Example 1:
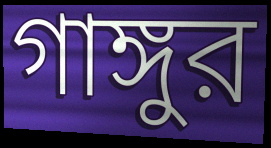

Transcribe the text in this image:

গাঙ্গুর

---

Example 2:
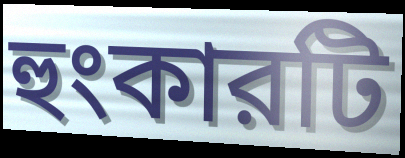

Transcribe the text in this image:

হুংকারটি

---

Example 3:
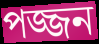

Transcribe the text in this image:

পজ্জন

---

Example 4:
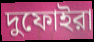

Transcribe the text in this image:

দুফোইরা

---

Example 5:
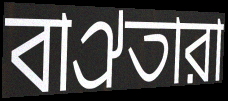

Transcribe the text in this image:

বাঐতারা